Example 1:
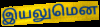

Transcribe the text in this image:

இயலுமென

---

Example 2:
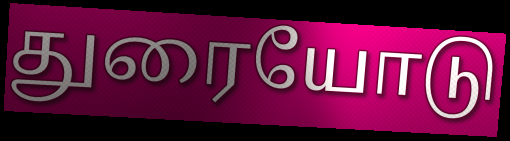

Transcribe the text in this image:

துரையோடு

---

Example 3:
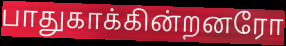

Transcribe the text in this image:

பாதுகாக்கின்றனரோ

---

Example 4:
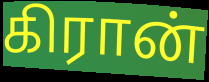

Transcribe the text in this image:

கிரான்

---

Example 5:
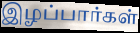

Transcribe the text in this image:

இழப்பார்கள்